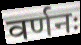
वर्णनः